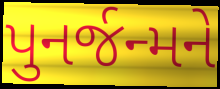
પુનર્જન્મને